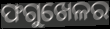
ଫଗୁଖେଳର